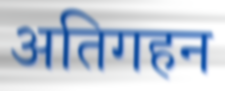
अतिगहन